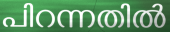
പിറന്നതിൽ